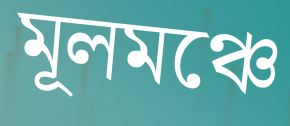
মূলমঞ্চে